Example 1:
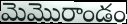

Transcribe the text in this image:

మెమొరాండం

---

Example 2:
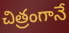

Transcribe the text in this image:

చిత్రంగానే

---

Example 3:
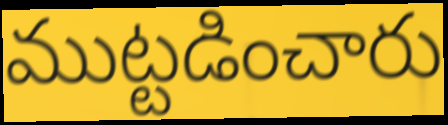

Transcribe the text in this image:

ముట్టడించారు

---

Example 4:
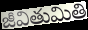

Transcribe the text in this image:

జీవితుమితి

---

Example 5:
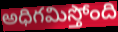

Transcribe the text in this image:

అధిగమిస్తోంది